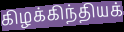
கிழக்கிந்தியக்